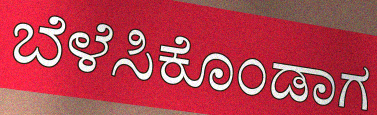
ಬೆಳೆಸಿಕೊಂಡಾಗ